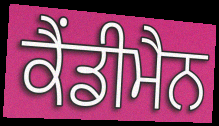
ਕੈਂਡੀਮੈਨ